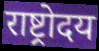
राष्ट्रोदय